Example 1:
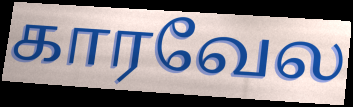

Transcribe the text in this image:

காரவேல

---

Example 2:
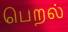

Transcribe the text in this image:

பெறல்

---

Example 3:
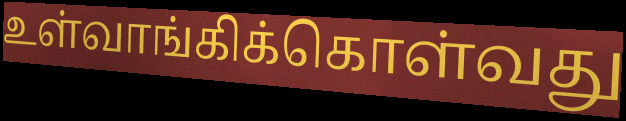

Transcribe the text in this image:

உள்வாங்கிக்கொள்வது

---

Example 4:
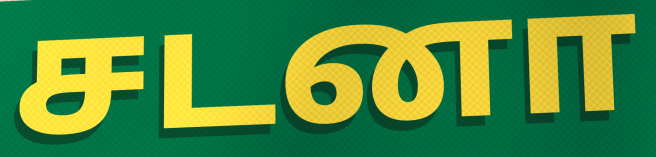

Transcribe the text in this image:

சடனா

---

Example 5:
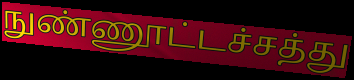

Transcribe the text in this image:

நுண்ணூட்டச்சத்து